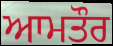
ਆਮਤੌਰ